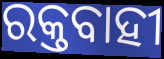
ରକ୍ତବାହୀ